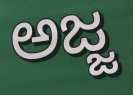
ಅಜ್ಜ